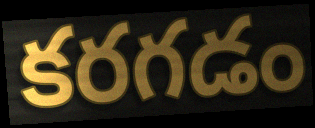
కరగడం